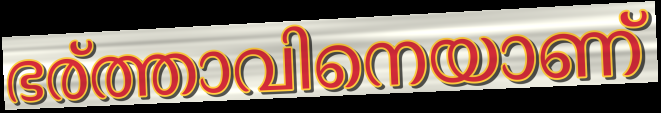
ഭര്ത്താവിനെയാണ്